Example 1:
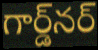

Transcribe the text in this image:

గార్డ్‌నర్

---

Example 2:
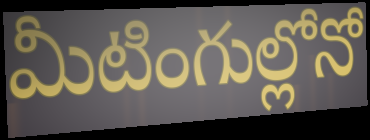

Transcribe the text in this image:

మీటింగుల్లోనో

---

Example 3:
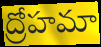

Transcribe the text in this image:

ద్రోహమా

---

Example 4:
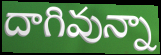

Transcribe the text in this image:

దాగివున్నా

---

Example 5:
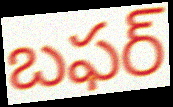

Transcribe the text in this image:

బఫర్